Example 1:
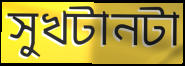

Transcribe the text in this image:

সুখটানটা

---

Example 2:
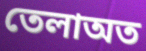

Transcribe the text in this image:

তেলাঅত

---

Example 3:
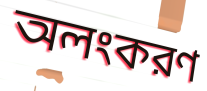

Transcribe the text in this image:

অলংকরণ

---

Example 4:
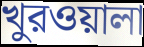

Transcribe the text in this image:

খুরওয়ালা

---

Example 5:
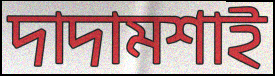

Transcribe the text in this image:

দাদামশাই